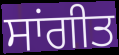
ਸਾਂਗੀਤ